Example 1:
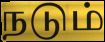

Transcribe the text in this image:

நடும்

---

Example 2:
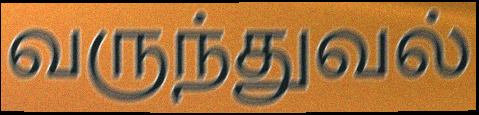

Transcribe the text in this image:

வருந்துவல்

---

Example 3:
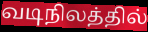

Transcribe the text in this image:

வடிநிலத்தில்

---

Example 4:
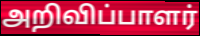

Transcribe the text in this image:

அறிவிப்பாளர்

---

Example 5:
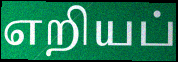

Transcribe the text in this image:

எறியப்